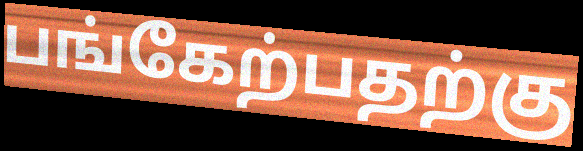
பங்கேற்பதற்கு